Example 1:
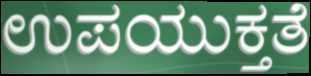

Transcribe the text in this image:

ಉಪಯುಕ್ತತೆ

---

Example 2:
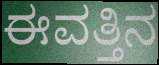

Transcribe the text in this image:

ಈವತ್ತಿನ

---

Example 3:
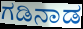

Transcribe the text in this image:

ಗಡಿನಾಡ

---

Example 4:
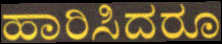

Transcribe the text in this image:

ಹಾರಿಸಿದರೂ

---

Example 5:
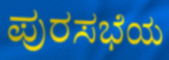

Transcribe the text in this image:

ಪುರಸಭೆಯ